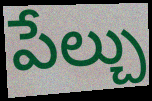
పేల్చు